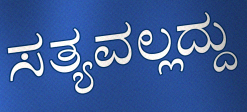
ಸತ್ಯವಲ್ಲದ್ದು